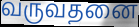
வருவதனை